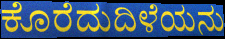
ಕೊರೆದುದಿಳೆಯನು